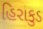
હિરાકુડ